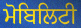
ਮੋਬਿਲਿਟੀ